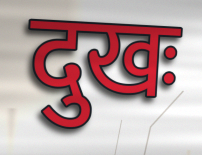
दुखः